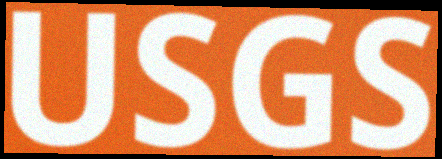
USGS